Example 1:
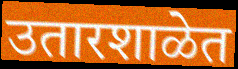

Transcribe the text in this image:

उतारशाळेत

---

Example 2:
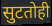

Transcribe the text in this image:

सुटतोही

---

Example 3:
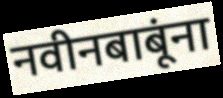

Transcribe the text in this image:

नवीनबाबूंना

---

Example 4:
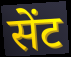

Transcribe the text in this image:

सेंट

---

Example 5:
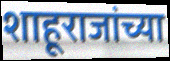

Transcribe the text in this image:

शाहूराजांच्या